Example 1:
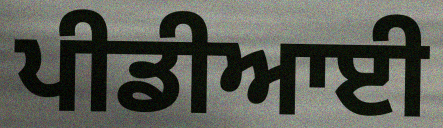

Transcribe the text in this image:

ਪੀਡੀਆਈ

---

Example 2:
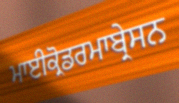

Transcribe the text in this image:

ਮਾਈਕ੍ਰੋਡਰਮਾਬ੍ਰੇਸਨ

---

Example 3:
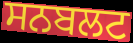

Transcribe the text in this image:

ਸਨਬਲਟ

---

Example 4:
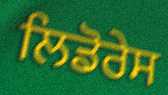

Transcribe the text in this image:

ਲਿਡੋਰੇਸ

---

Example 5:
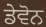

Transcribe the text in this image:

ਡੇਵੋਨ